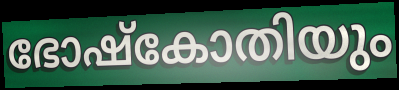
ഭോഷ്കോതിയും